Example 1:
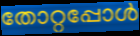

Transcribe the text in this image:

തോറ്റപ്പോൾ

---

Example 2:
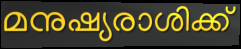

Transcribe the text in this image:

മനുഷ്യരാശിക്ക്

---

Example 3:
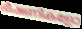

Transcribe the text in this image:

ഭീഷണികളോ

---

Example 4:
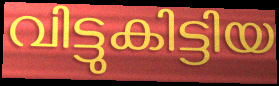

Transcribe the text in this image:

വിട്ടുകിട്ടിയ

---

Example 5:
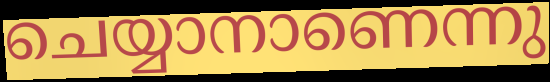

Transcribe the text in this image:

ചെയ്യാനാണെന്നു